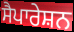
ਸੈਪਾਰੇਸ਼ਨ